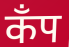
कॅंप